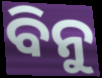
ବିନୁ